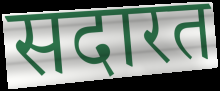
सदारत